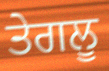
ਤੇਗਲੂ